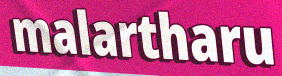
malartharu